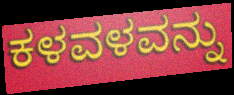
ಕಳವಳವನ್ನು